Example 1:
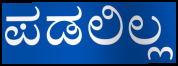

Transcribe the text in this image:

ಪಡಲಿಲ್ಲ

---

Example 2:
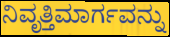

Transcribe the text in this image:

ನಿವೃತ್ತಿಮಾರ್ಗವನ್ನು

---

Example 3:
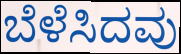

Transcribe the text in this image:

ಬೆಳೆಸಿದವು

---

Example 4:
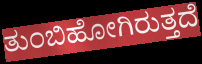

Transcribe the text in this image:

ತುಂಬಿಹೋಗಿರುತ್ತದೆ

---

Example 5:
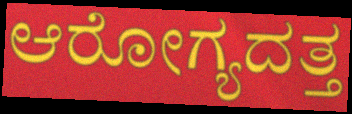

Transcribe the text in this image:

ಆರೋಗ್ಯದತ್ತ